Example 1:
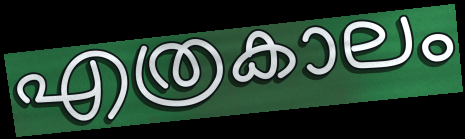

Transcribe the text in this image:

എത്രകാലം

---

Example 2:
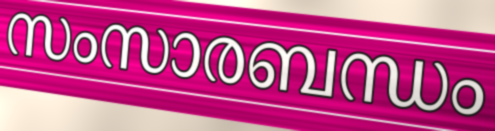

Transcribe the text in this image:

സംസാരബന്ധം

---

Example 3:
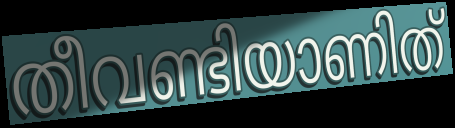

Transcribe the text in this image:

തീവണ്ടിയാണിത്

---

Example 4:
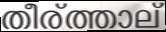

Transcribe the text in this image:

തീര്ത്താല്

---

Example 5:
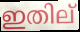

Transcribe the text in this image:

ഇതില്